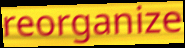
reorganize